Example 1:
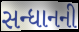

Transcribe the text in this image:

સન્ધાનની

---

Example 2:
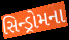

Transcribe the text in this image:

સિન્ડ્રોમના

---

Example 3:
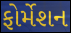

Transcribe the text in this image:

ફોર્મેશન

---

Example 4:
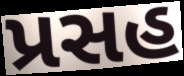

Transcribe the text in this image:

પ્રસહ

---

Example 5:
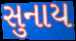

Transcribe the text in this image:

સુનાય